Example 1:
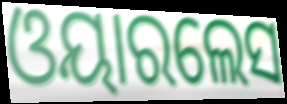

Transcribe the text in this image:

ଓୟାରଲେସ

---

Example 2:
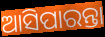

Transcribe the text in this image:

ଆସିପାରନ୍ତା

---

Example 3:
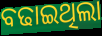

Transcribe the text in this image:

ବଢାଇଥିଲା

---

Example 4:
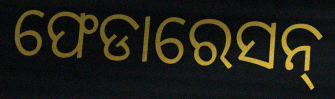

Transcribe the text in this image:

ଫେଡାରେସନ୍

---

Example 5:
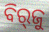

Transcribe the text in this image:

ବିର୍‌ଜୁ